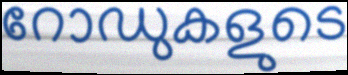
റോഡുകളുടെ